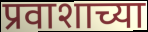
प्रवाशाच्या